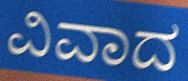
ವಿವಾದ